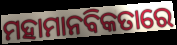
ମହାମାନବିକତାରେ